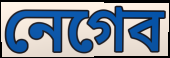
নেগেব